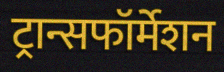
ट्रान्सफॉर्मेशन